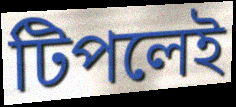
টিপলেই